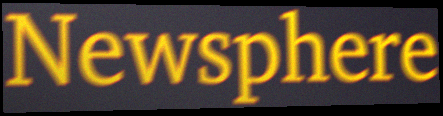
Newsphere